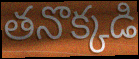
తనొక్కడి